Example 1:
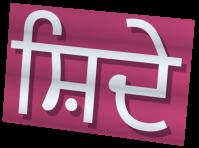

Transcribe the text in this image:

ਸ਼ਿਦੇ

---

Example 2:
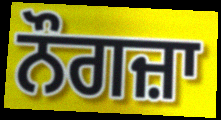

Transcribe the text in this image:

ਨੌਗਜ਼ਾ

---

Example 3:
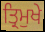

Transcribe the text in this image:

ਤ੍ਰਿਮੁਖੇ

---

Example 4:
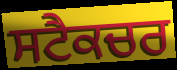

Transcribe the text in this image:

ਸਟੈਕਚਰ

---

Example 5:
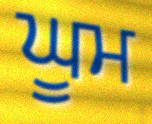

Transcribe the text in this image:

ਘੂਮ